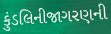
કુંડલિનીજાગરણની